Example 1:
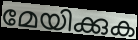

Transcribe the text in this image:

മേയിക്കുക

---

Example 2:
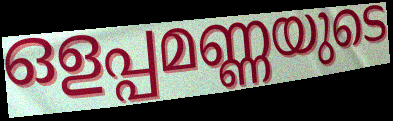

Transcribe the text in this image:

ഒളപ്പമണ്ണയുടെ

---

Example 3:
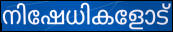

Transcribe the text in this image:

നിഷേധികളോട്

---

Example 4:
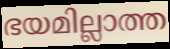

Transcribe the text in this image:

ഭയമില്ലാത്ത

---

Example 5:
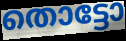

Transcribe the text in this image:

തൊട്ടോ